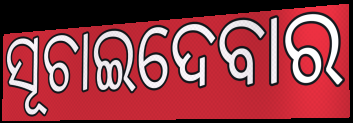
ସୂଚାଇଦେବାର